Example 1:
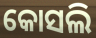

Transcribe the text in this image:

କୋସଲି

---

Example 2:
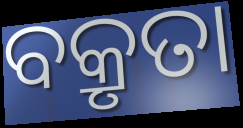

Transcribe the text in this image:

ବକ୍ରୃତା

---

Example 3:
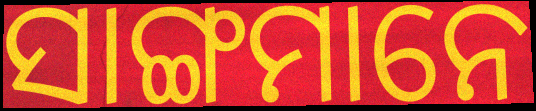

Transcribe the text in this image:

ସାଙ୍ଗମାନେ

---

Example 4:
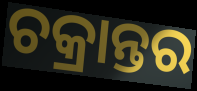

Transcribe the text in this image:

ଚକ୍ରାନ୍ତର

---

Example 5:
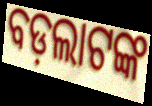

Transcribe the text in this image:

ବଡ଼ଲାଟଙ୍କ